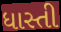
ધાસ્તી